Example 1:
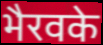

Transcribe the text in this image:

भैरवके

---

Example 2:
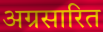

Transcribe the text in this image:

अग्रसारित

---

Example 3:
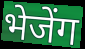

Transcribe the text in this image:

भेजेंग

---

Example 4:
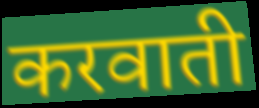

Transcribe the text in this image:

करवाती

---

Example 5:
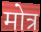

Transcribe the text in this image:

मोत्र